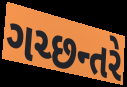
ગચ્છન્તરે